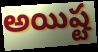
అయిష్ట